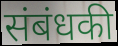
संबंधकी